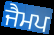
ਜੈਮਪ